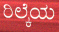
ರಿಲ್ಕೆಯ